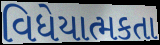
વિધેયાત્મકતા